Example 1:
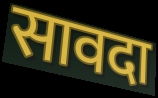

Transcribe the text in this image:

सावदा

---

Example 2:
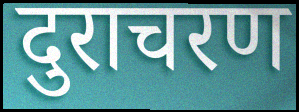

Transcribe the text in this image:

दुराचरण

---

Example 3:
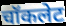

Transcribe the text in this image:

चॉकलेट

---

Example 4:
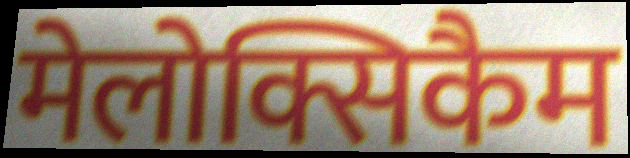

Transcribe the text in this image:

मेलोक्सिकैम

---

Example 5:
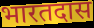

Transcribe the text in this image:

भारतदास